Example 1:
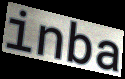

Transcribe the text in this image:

inba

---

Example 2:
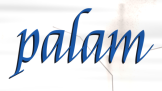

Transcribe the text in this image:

palam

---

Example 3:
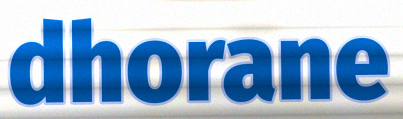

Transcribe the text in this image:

dhorane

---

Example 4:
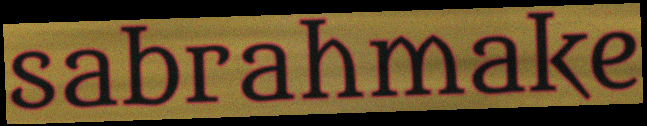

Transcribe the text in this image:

sabrahmake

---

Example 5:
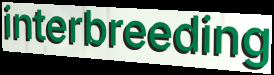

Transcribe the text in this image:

interbreeding